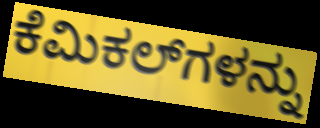
ಕೆಮಿಕಲ್‌ಗಳನ್ನು